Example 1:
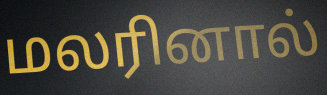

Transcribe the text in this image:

மலரினால்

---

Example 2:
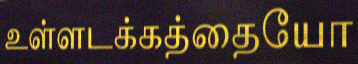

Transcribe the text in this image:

உள்ளடக்கத்தையோ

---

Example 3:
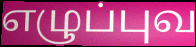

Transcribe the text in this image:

எழுப்புவ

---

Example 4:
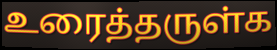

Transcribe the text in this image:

உரைத்தருள்க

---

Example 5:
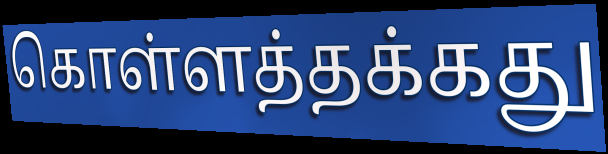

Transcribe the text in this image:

கொள்ளத்தக்கது